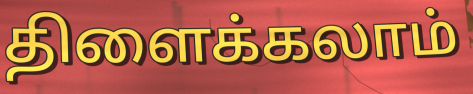
திளைக்கலாம்